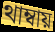
থাম্বায়